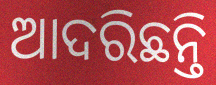
ଆଦରିଛନ୍ତି